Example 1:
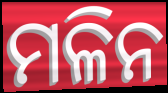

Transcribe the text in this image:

ମଳିନ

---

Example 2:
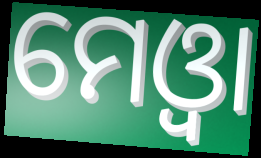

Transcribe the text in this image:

ମେଓ୍ୱା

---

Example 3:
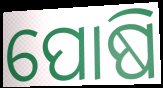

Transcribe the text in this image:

ପୋଷି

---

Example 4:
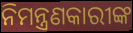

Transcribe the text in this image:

ନିମନ୍ତ୍ରଣକାରୀଙ୍କ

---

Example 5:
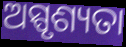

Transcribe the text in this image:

ଅସ୍ପୃଶ୍ୟତା